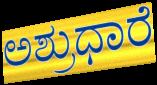
ಅಶ್ರುಧಾರೆ